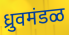
ध्रुवमंडळ